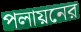
পলায়নের